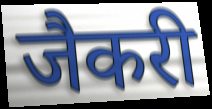
जैकरी